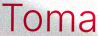
Toma